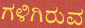
ಗಳಿಗಿರುವ